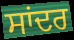
ਸਾਂਦਰ